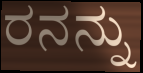
ರನನ್ನು